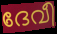
ദേവീ